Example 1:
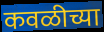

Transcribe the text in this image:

कवळीच्या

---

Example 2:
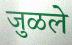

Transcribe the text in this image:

जुळले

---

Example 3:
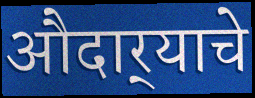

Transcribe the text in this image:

औदार्याचे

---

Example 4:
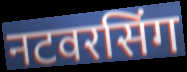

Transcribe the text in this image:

नटवरसिंग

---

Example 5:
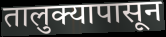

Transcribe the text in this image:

तालुक्यापासून